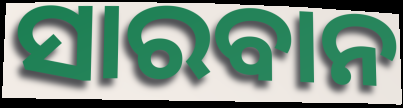
ସାରବାନ